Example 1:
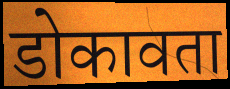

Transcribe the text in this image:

डोकावता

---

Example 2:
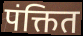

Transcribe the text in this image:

पंक्तित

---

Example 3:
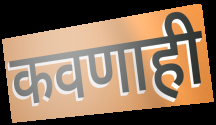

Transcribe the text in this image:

कवणाही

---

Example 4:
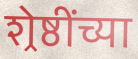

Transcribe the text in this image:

श्रेष्ठींच्या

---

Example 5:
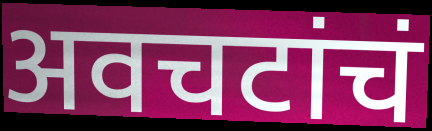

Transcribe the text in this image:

अवचटांचं